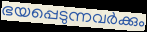
ഭയപ്പെടുന്നവർക്കും